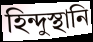
হিন্দুস্থানি